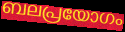
ബലപ്രയോഗം